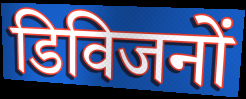
डिविजनों